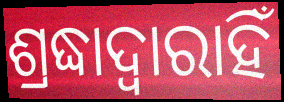
ଶ୍ରଦ୍ଧାଦ୍ୱାରାହିଁ